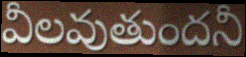
వీలవుతుందనీ